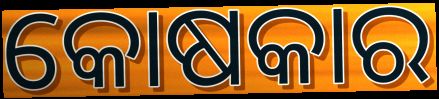
କୋଷକାର